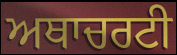
ਅਥਾਚਰਟੀ